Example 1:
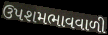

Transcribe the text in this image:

ઉપશમભાવવાળી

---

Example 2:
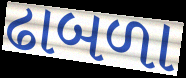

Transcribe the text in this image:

ઢાબળા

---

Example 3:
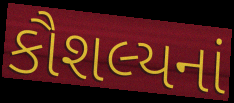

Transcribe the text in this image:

કૌશલ્યનાં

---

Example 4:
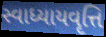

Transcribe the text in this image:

સ્વાધ્યાયવૃત્તિ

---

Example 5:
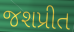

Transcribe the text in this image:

જશપ્રીત